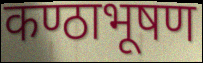
कण्ठाभूषण